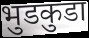
भुडकुडा